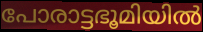
പോരാട്ടഭൂമിയിൽ